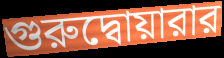
গুরুদ্বোয়ারার